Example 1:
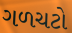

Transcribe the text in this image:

ગળચટો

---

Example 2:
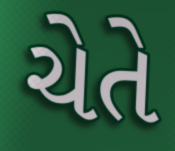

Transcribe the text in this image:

ચેતે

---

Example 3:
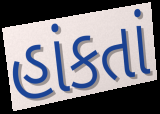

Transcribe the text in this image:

હાંકતાં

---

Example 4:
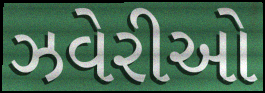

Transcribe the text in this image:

ઝવેરીઓ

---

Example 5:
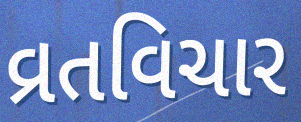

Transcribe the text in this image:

વ્રતવિચાર